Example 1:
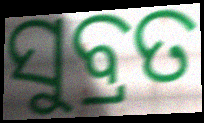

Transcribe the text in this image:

ସୁବ୍ରତ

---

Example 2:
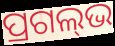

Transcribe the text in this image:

ପ୍ରଗଲ୍‌ଭ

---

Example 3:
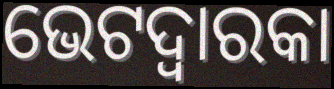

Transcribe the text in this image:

ଭେଟଦ୍ୱାରକା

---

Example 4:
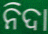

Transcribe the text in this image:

ନିଦା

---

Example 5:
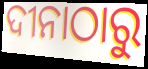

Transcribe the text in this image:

ଦୀନାଠାରୁ